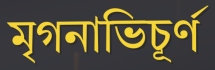
মৃগনাভিচূর্ণ